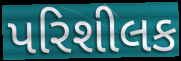
પરિશીલક